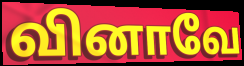
வினாவே